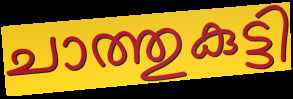
ചാത്തുകുട്ടി